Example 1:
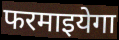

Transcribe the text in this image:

फरमाइयेगा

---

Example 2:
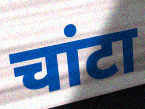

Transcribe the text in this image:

चांटा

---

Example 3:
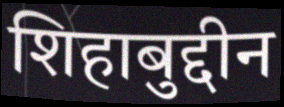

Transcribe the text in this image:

शिहाबुद्दीन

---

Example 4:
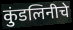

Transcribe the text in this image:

कुंडलिनीचे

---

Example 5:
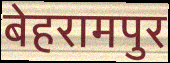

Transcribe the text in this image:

बेहरामपुर